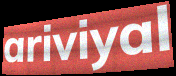
ariviyal